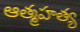
ఆత్మహత్య